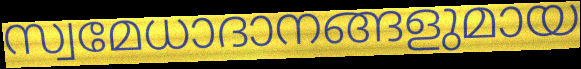
സ്വമേധാദാനങ്ങളുമായ